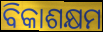
ବିକାଶକ୍ଷମ